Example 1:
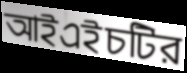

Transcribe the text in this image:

আইএইচটির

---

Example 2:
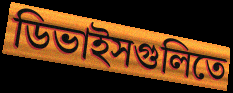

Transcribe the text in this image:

ডিভাইসগুলিতে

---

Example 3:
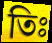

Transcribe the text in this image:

তিঃ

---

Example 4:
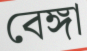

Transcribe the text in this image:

বেঙ্গা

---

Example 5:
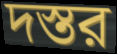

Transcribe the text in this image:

দস্তর